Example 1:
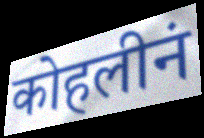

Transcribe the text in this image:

कोहलीनं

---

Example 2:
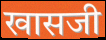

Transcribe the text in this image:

खासजी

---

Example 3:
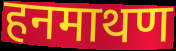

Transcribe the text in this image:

हनमाथण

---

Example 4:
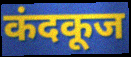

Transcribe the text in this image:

कंदकूज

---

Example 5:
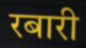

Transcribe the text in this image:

रबारी